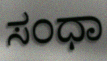
ಸಂಧಾ